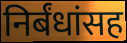
निर्बंधांसह